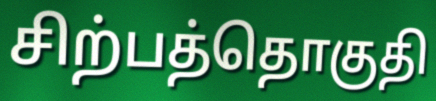
சிற்பத்தொகுதி